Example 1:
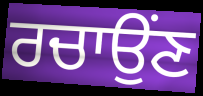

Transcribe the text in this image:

ਰਚਾਉਂਣ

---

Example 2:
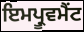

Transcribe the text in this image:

ਇਮਪ੍ਰੂਵਮੈਂਟ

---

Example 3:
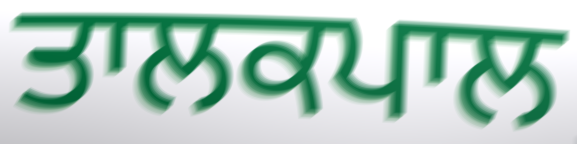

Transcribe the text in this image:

ਤਾਲਕਪਾਲ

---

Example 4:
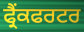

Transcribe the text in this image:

ਫ੍ਰੈਂਕਫਰਟਰ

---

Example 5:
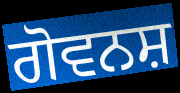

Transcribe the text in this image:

ਗੋਵਨਸ਼